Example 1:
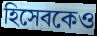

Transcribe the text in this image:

হিসেবকেও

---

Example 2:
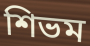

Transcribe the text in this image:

শিভম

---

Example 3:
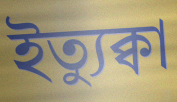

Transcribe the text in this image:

ইত্যুক্বা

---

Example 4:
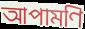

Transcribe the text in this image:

আপামণি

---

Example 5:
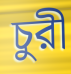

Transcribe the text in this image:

চুরী